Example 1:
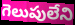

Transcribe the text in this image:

గెలుపులేని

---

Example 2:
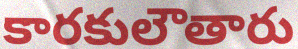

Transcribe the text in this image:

కారకులౌతారు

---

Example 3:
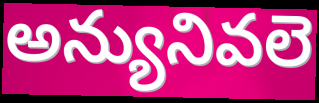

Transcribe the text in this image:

అన్యునివలె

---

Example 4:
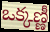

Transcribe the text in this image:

ఒక్కణ్ణీ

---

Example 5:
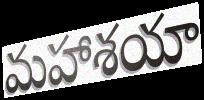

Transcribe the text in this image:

మహాశయా